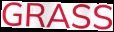
GRASS